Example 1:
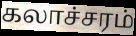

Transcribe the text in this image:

கலாச்சரம்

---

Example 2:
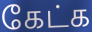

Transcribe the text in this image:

கேட்க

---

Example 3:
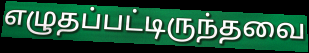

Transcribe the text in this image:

எழுதப்பட்டிருந்தவை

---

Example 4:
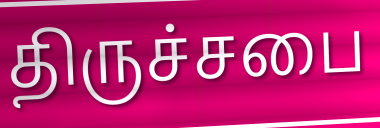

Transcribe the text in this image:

திருச்சபை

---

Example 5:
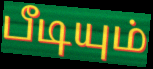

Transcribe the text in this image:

பீடியும்